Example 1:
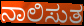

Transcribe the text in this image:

ನಾಲಿಸುತ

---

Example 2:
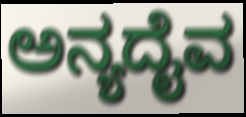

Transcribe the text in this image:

ಅನ್ಯದೈವ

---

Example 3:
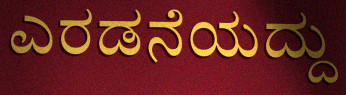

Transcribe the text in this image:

ಎರಡನೆಯದ್ದು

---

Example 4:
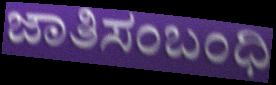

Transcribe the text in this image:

ಜಾತಿಸಂಬಂಧಿ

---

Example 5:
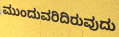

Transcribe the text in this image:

ಮುಂದುವರಿದಿರುವುದು